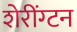
शेरींग्टन